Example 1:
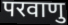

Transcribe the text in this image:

परवाणु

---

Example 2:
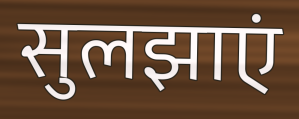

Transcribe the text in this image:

सुलझाएं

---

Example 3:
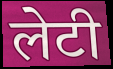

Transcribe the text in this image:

लेटी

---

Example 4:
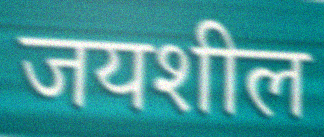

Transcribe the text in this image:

जयशील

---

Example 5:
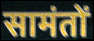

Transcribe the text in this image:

सामंतों